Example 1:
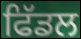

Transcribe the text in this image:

ਫਿੱਡਲ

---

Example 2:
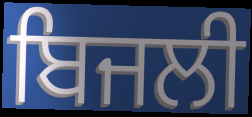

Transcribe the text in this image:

ਬਿਜਲੀ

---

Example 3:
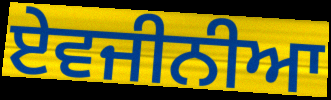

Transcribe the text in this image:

ਏਵਜੀਨੀਆ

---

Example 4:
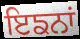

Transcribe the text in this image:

ਇਙਨਾਂ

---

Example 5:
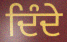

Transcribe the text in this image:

ਦਿੰਦੇ